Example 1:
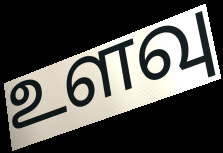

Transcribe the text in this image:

உளவு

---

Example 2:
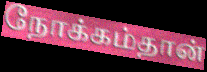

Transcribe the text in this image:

நோக்கம்தான்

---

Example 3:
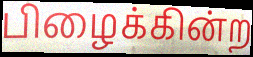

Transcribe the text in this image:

பிழைக்கின்ற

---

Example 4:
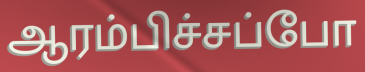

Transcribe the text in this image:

ஆரம்பிச்சப்போ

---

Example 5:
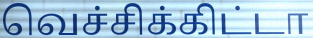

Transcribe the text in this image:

வெச்சிக்கிட்டா